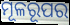
ମୂଳରୂପର